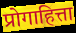
प्रोगाहित्ता